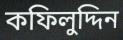
কফিলুদ্দিন